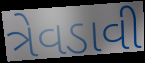
ત્રેવડાવી